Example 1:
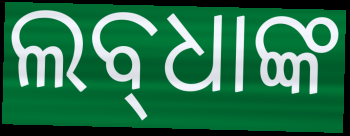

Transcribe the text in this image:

ଲବ୍‌ଧାଙ୍କ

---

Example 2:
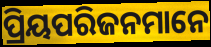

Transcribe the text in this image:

ପ୍ରିୟପରିଜନମାନେ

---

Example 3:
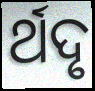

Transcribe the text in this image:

ର୍ଥଦୃ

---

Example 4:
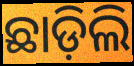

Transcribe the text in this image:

ଛାଡ଼ିଲି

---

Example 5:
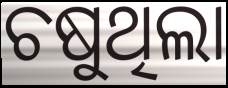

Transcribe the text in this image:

ଚଷୁଥିଲା